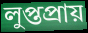
লুপ্তপ্ৰায়